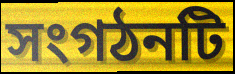
সংগঠনটি